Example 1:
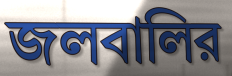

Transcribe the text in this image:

জলবালির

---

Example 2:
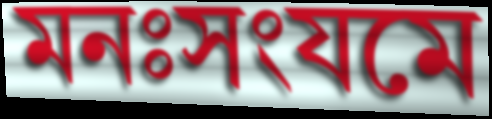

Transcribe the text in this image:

মনঃসংযমে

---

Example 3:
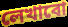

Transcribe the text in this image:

লেখাবো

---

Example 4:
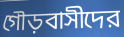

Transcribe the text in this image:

গৌড়বাসীদের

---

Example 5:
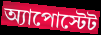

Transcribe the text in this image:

অ্যাপোস্টেট